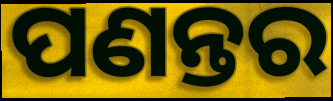
ପଣନ୍ତର